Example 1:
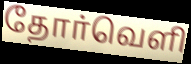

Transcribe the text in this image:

தோர்வெளி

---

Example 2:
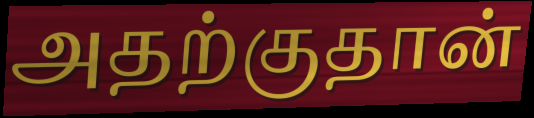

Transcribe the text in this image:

அதற்குதான்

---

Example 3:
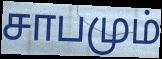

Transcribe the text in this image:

சாபமும்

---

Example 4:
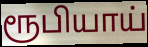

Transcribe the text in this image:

ரூபியாய்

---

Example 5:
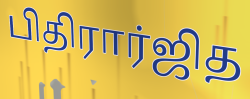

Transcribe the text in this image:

பிதிரார்ஜித